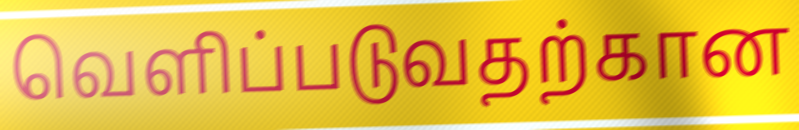
வெளிப்படுவதற்கான